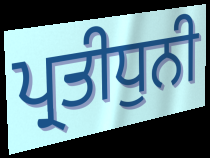
ਪ੍ਰਤੀਧੁਨੀ